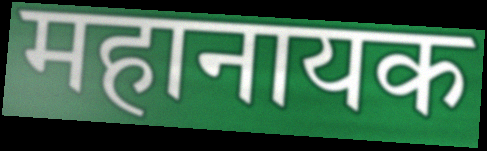
महानायक